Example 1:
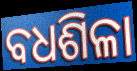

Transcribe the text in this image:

ବଧଶିଳା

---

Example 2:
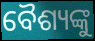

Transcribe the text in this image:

ବୈଶ୍ୟଙ୍କୁ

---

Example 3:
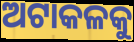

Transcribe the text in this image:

ଅଟାକଳକୁ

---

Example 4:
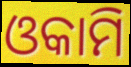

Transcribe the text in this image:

ଓକାମି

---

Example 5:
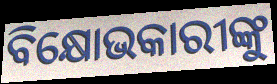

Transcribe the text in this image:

ବିକ୍ଷୋଭକାରୀଙ୍କୁ